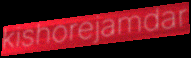
kishorejamdar